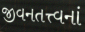
જીવનતત્ત્વનાં